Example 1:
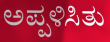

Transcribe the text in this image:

ಅಪ್ಪಳಿಸಿತು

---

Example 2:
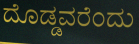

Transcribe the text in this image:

ದೊಡ್ಡವರೆಂದು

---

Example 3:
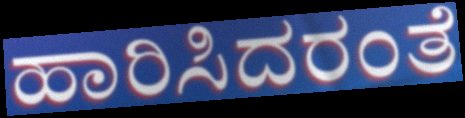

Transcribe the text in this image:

ಹಾರಿಸಿದರಂತೆ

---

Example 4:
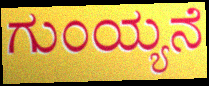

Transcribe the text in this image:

ಗುಂಯ್ಯನೆ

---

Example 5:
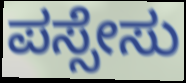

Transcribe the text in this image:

ಪಸ್ಸೇಸು